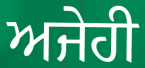
ਅਜੇਹੀ